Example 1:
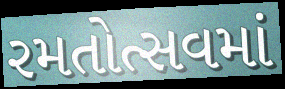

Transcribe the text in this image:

રમતોત્સવમાં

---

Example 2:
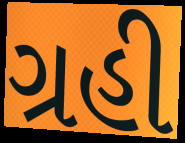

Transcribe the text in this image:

ગ્રહી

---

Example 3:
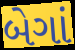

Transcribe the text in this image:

બેગાં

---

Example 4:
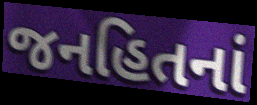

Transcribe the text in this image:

જનહિતનાં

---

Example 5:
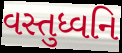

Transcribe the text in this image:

વસ્તુધ્વનિ